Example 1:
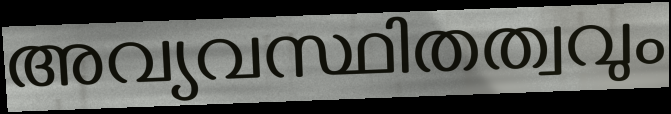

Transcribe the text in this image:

അവ്യവസ്ഥിതത്വവും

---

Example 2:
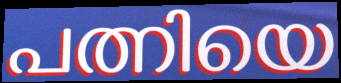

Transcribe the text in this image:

പത്നിയെ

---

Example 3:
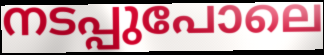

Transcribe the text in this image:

നടപ്പുപോലെ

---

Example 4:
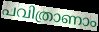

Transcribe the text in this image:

പവിത്രാണാം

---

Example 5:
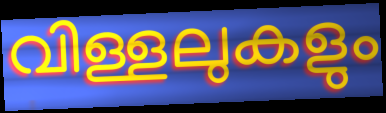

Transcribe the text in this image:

വിള്ളലുകളും